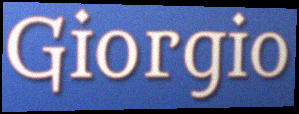
Giorgio